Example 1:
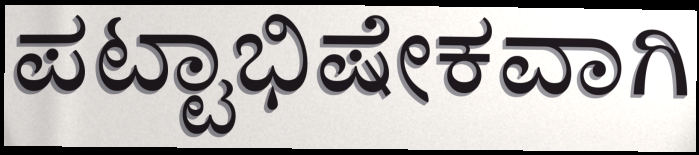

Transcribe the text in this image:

ಪಟ್ಟಾಭಿಷೇಕವಾಗಿ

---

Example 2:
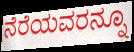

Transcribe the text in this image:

ನೆರೆಯವರನ್ನೂ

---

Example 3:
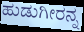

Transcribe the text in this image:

ಹುಡುಗೀರನ್ನ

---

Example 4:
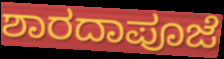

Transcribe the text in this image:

ಶಾರದಾಪೂಜೆ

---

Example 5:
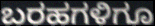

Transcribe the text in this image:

ಬರಹಗಳಿಗೂ